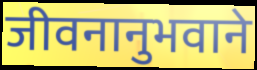
जीवनानुभवाने